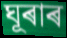
ঘূৰাৰ